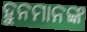
ହୁନମାନଙ୍କ